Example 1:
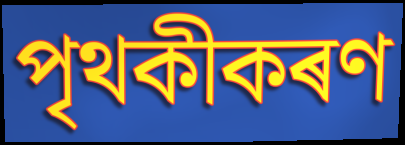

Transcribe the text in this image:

পৃথকীকৰণ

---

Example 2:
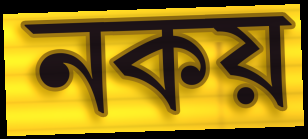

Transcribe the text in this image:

নকয়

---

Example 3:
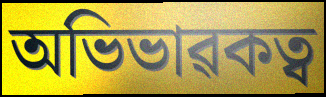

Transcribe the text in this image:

অভিভাৱকত্ব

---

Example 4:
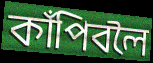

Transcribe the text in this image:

কাঁপিবলৈ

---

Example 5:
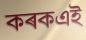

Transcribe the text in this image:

কৰকএই